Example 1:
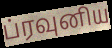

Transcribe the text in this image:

ப்ரவுனிய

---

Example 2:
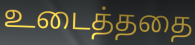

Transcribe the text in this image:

உடைத்ததை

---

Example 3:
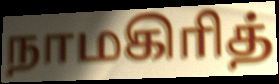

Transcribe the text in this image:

நாமகிரித்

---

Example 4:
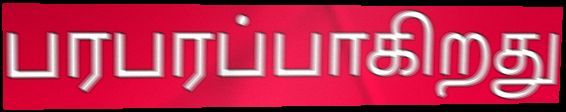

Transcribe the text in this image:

பரபரப்பாகிறது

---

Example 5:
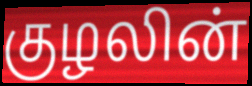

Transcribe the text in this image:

குழலின்